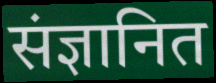
संज्ञानित